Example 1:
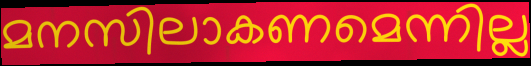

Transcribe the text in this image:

മനസിലാകണമെന്നില്ല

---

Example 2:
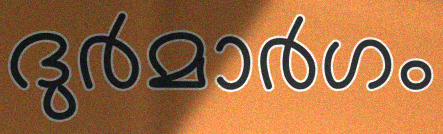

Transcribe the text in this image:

ദുർമാർഗം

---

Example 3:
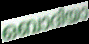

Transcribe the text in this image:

ഒബാദിയാ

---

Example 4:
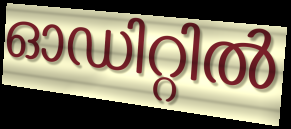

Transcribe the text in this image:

ഓഡിറ്റിൽ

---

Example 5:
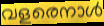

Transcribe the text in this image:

വളരെനാൾ